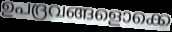
ഉപദ്രവങ്ങളൊക്കെ